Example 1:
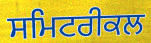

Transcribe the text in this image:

ਸਮਿਟਰੀਕਲ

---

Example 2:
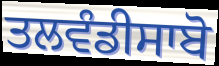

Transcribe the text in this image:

ਤਲਵੰਡੀਸਾਬੋ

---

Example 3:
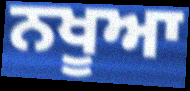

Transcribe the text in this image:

ਨਖੂਆ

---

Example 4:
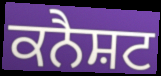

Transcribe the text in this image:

ਕਨੈਸ਼ਟ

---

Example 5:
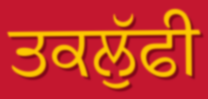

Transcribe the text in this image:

ਤਕਲੁੱਫੀ